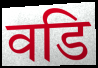
वडि